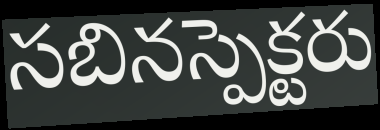
సబినస్పెక్టరు